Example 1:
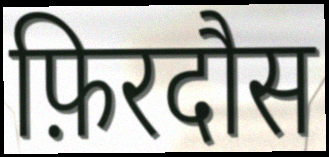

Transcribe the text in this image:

फ़िरदौस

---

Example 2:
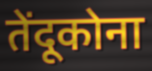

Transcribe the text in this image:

तेंदूकोना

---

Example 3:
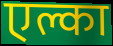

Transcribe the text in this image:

एल्का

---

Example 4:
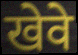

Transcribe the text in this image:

खेवे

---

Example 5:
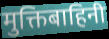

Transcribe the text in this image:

मुक्तिबाहिनी